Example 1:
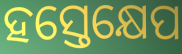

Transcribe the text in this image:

ହସ୍ତେକ୍ଷେପ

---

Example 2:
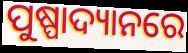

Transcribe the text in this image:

ପୁଷ୍ପାଦ୍ୟାନରେ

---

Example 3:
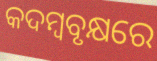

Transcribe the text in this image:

କଦମ୍ୱବୃକ୍ଷରେ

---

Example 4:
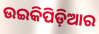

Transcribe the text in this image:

ଉଇକିପିଡ଼ିଆର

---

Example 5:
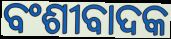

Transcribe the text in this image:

ବଂଶୀବାଦକ